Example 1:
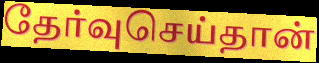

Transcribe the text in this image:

தேர்வுசெய்தான்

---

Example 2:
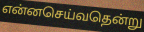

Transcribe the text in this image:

என்னசெய்வதென்று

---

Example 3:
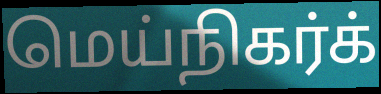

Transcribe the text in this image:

மெய்நிகர்க்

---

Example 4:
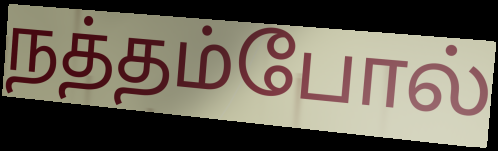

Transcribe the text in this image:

நத்தம்போல்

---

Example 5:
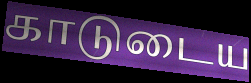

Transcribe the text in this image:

காடுடைய